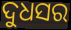
ଦୁଧସର